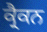
ਕ੍ਰੈਕਨ